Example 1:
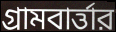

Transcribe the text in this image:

গ্রামবার্ত্তার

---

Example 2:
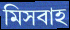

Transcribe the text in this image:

মিসবাহ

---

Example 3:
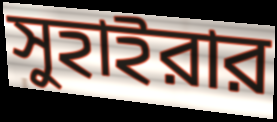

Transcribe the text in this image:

সুহাইরার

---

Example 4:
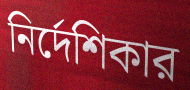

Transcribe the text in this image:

নির্দেশিকার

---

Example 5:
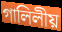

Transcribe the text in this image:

গালিলীয়